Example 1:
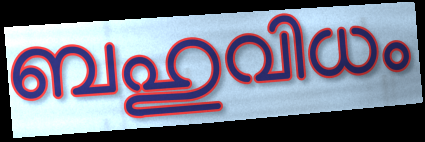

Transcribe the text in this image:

ബഹുവിധം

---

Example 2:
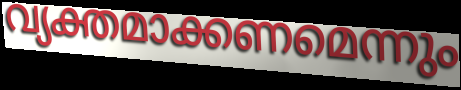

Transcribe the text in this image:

വ്യക്തമാക്കണമെന്നും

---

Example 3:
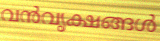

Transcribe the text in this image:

വൻവൃക്ഷങ്ങൾ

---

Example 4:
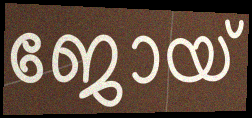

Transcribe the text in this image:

ജോയ്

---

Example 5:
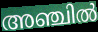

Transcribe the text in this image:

അഞ്ചിൽ